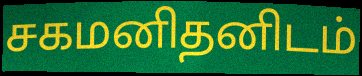
சகமனிதனிடம்